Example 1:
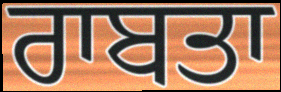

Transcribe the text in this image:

ਰਾਬਤਾ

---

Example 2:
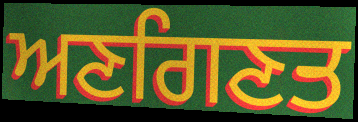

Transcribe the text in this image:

ਅਣਗਿਣਤ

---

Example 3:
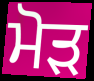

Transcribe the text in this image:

ਮੋੜ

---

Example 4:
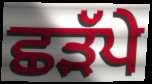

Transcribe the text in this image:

ਛੜੱਪੇ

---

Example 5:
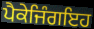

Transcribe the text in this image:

ਪੈਕੇਜਿੰਗਇਹ